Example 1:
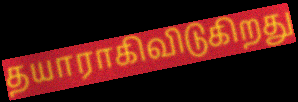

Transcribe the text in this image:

தயாராகிவிடுகிறது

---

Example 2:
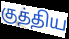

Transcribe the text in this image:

குத்திய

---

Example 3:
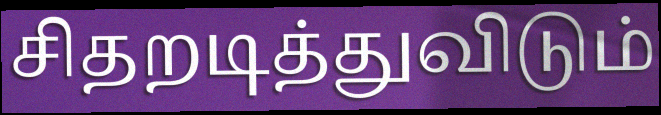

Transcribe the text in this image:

சிதறடித்துவிடும்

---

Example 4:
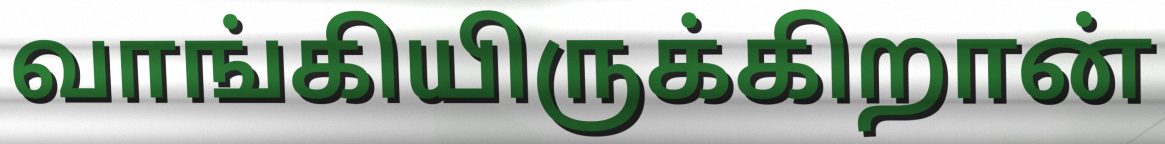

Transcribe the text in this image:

வாங்கியிருக்கிறான்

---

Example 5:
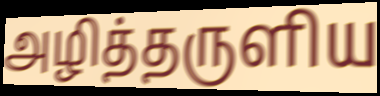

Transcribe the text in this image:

அழித்தருளிய